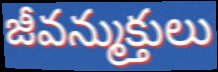
జీవన్ముక్తులు